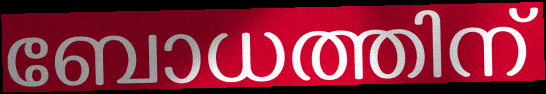
ബോധത്തിന്